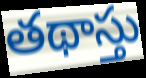
తథాస్తు